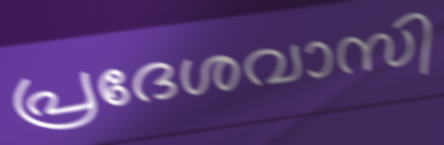
പ്രദേശവാസി